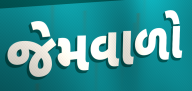
જેમવાળો